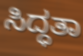
ಸಿದ್ಧತಾ